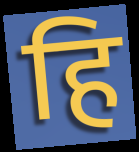
हि